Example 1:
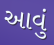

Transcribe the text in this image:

આવું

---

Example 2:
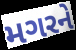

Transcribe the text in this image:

મગરને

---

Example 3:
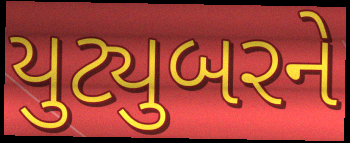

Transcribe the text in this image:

યુટ્યુબરને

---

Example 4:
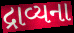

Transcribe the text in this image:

દ્રાવ્યના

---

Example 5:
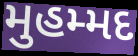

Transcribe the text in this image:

મુહમ્મદ